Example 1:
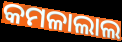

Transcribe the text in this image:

କମଳାଲାଲ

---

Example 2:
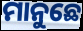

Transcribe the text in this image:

ମାନୁଛେ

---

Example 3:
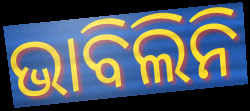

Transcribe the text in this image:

ଭାବିଲିନି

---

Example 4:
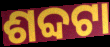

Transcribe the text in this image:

ଶବ୍ଦଟା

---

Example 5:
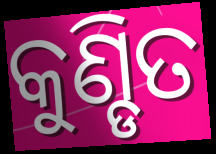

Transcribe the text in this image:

କୁଣ୍ଡିତ